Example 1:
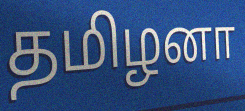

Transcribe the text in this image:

தமிழனா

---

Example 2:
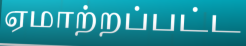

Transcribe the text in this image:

ஏமாற்றப்பட்ட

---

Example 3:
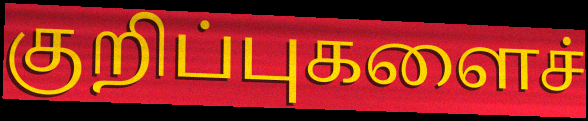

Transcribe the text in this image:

குறிப்புகளைச்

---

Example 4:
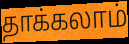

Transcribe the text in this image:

தாக்கலாம்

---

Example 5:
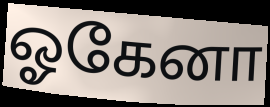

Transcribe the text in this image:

ஓகேனா